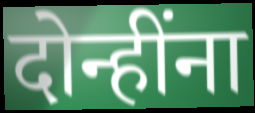
दोन्हींना